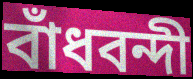
বাঁধবন্দী